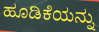
ಹೂಡಿಕೆಯನ್ನು